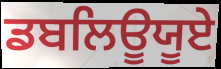
ਡਬਲਿਊਯੂਏ